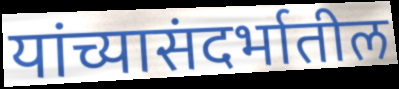
यांच्यासंदर्भातील